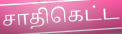
சாதிகெட்ட